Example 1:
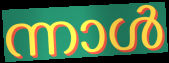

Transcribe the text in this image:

ന്നാൾ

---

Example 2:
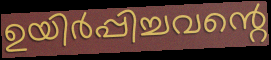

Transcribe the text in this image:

ഉയിർപ്പിച്ചവന്റെ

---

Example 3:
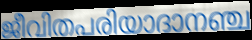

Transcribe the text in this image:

ജീവിതപരിയാദാനഞ്ച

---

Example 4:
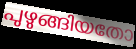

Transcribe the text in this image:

പുഴുങ്ങിയതോ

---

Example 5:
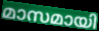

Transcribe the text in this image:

മാസമായി